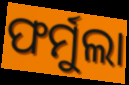
ଫର୍ମୁଲା